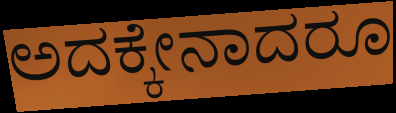
ಅದಕ್ಕೇನಾದರೂ